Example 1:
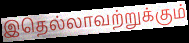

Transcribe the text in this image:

இதெல்லாவற்றுக்கும்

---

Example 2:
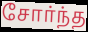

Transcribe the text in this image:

சோர்ந்த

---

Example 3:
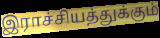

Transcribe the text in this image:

இராச்சியத்துக்கும்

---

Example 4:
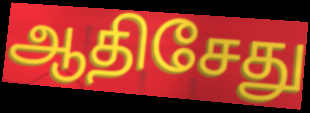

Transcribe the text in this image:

ஆதிசேது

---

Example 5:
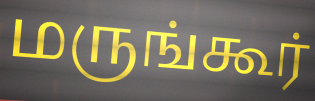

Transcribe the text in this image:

மருங்கூர்